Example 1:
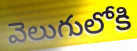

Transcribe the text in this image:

వెలుగులోకి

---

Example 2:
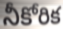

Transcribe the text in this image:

నీకోరిక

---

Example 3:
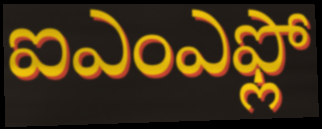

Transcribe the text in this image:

ఐఎంఎఫ్లో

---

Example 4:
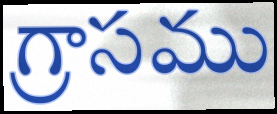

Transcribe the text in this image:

గ్రాసము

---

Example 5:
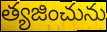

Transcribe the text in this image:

త్యజించును